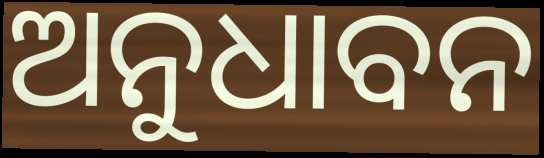
ଅନୁଧାବନ